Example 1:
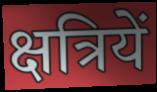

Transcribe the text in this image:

क्षत्रियें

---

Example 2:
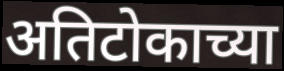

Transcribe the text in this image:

अतिटोकाच्या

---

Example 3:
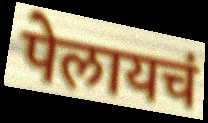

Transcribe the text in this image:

पेलायचं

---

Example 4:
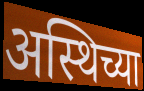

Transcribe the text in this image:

अस्थिच्या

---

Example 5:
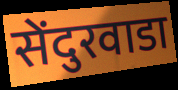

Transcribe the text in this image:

सेंदुरवाडा